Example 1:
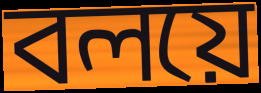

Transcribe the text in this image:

বলয়ে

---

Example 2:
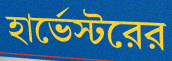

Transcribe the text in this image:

হার্ভেস্টরের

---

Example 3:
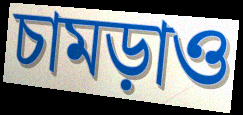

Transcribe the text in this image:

চামড়াও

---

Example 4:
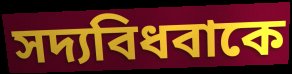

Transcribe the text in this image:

সদ্যবিধবাকে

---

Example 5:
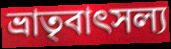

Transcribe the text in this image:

ভ্রাতৃবাৎসল্য